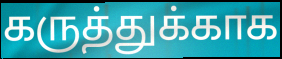
கருத்துக்காக